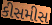
કીસમીસ